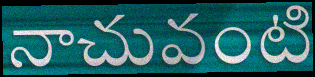
నాచువంటి